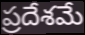
ప్రదేశమే